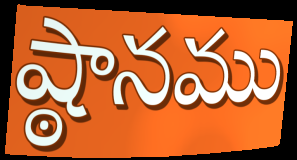
ష్ఠానము